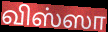
விஸ்ஸா